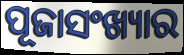
ପୂଜାସଂଖ୍ୟାର